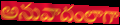
అనువాదంలాగా